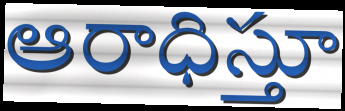
ఆరాధిస్తూ